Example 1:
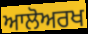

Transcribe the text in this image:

ਆਲੋਅਰਖ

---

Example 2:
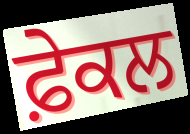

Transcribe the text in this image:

ਫ਼ੇਕਲ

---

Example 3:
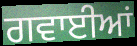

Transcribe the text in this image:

ਗਵਾਈਆਂ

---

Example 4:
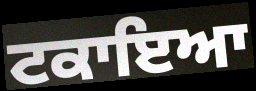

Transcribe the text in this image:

ਟਕਾਇਆ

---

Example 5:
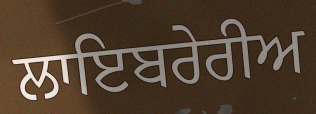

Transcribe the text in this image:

ਲਾਇਬਰੇਰੀਅ